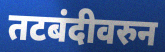
तटबंदीवरुन